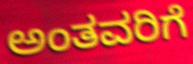
ಅಂತವರಿಗೆ